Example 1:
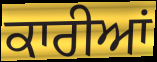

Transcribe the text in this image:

ਕਾਰੀਆਂ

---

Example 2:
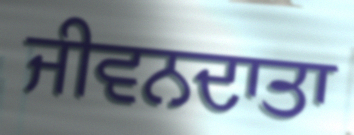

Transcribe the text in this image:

ਜੀਵਨਦਾਤਾ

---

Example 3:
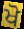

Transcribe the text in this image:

ਖੋ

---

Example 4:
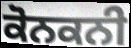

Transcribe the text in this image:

ਕੋਨਕਨੀ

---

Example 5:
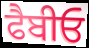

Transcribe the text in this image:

ਫੈਬੀਓ